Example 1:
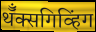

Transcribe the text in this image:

थॅँक्सगिव्हिंग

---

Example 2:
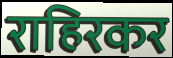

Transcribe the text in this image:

राहिरकर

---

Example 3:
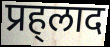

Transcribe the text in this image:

प्रह्‌लाद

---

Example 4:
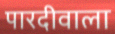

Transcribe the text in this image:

पारदीवाला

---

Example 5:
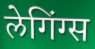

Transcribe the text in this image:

लेगिंग्स